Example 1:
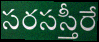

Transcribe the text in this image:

సరసస్తీరే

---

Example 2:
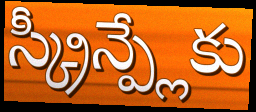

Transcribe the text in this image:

స్క్రీన్ప్లేకు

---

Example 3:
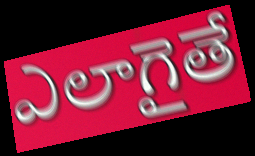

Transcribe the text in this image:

ఎలాగైతే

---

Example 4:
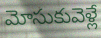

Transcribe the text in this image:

మోసుకువెళ్లే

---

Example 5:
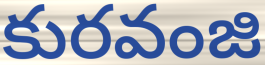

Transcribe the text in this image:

కురవంజి